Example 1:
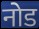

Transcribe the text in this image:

नोड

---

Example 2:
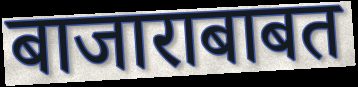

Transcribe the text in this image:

बाजाराबाबत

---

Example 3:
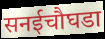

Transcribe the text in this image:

सनईचौघडा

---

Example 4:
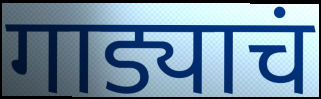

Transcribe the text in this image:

गाड्याचं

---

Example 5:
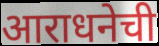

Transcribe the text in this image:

आराधनेची